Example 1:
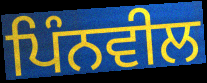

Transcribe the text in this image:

ਪਿੰਨਵੀਲ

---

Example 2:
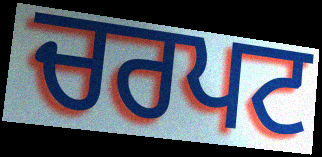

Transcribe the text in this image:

ਚਰਪਟ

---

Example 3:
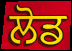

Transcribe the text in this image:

ਲੋਡ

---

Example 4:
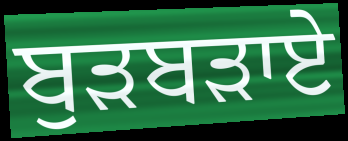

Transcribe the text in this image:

ਬੁੜਬੜਾਏ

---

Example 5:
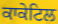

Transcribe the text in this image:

ਕਾਕੇਟਿਲ